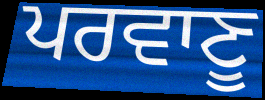
ਪਰਵਾਣੂ